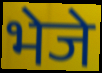
भेजे